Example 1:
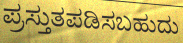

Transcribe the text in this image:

ಪ್ರಸ್ತುತಪಡಿಸಬಹುದು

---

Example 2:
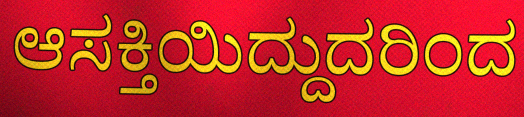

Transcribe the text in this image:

ಆಸಕ್ತಿಯಿದ್ದುದರಿಂದ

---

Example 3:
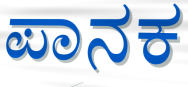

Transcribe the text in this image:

ಪಾನಕ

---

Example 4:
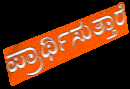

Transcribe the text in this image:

ಪ್ರಾರ್ಥಿಸುತ್ತಾರೆ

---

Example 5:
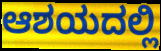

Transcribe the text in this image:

ಆಶಯದಲ್ಲಿ